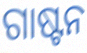
ଗାଷ୍ଟନ